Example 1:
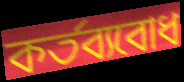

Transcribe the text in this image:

কর্তব্যবোধ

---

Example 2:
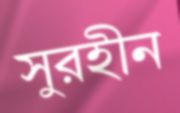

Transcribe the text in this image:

সুরহীন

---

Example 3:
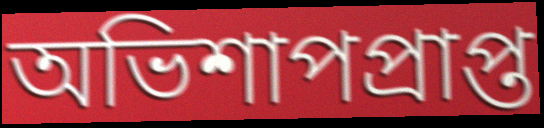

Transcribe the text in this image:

অভিশাপপ্রাপ্ত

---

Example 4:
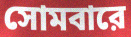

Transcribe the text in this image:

সোমবারে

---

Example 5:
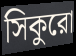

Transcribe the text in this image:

সিকুরো